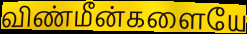
விண்மீன்களையே